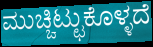
ಮುಚ್ಚಿಟ್ಟುಕೊಳ್ಳದೆ